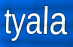
tyala